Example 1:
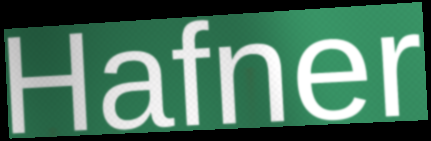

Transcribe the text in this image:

Hafner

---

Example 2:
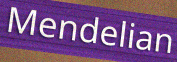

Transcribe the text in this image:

Mendelian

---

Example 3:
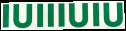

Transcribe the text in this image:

IUIIIUIU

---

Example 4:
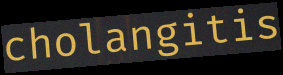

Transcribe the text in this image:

cholangitis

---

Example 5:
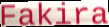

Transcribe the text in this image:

Fakira